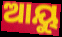
ଆୟୁ